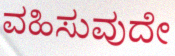
ವಹಿಸುವುದೇ